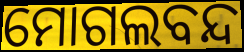
ମୋଗଲବନ୍ଦ